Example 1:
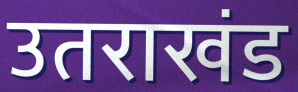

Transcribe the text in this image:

उतराखंड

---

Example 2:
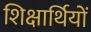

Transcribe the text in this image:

शिक्षार्थियों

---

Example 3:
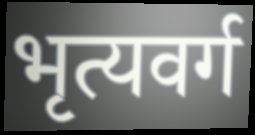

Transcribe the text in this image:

भृत्यवर्ग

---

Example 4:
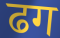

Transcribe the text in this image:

ढग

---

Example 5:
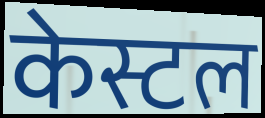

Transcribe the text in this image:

केस्टल